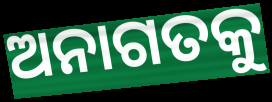
ଅନାଗତକୁ